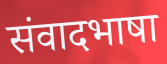
संवादभाषा